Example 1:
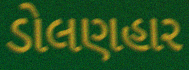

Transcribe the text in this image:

ડોલણહાર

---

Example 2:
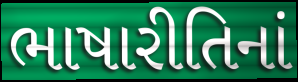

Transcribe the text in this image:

ભાષારીતિનાં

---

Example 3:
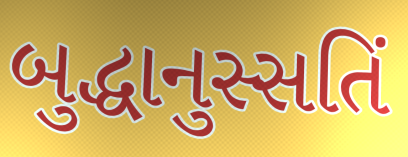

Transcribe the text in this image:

બુદ્ધાનુસ્સતિં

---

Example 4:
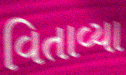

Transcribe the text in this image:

વિતાવ્યા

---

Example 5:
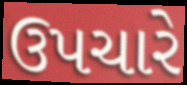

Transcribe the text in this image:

ઉપચારે